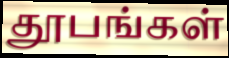
தூபங்கள்